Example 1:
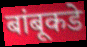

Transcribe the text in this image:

बांबूकडे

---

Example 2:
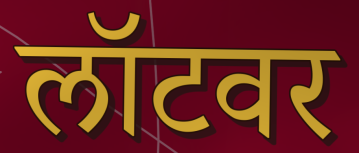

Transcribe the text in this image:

लॉटवर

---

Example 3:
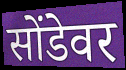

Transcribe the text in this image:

सोंडेवर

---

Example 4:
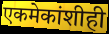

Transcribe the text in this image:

एकमेकांशीही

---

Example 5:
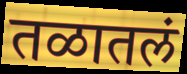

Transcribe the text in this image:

तळातलं